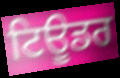
ਟਿਊਡਰ